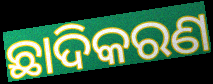
ଛାଦିକରଣ